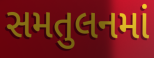
સમતુલનમાં